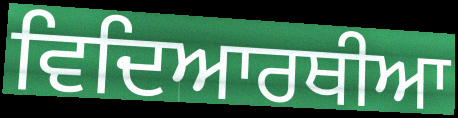
ਵਿਦਿਆਰਥੀਆ